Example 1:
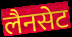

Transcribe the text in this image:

लैनसेट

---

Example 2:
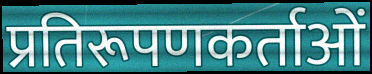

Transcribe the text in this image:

प्रतिरूपणकर्ताओं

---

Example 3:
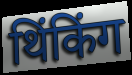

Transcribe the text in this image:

थिंकिंग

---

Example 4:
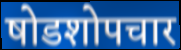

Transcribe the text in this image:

षोडशोपचार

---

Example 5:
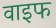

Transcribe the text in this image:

वाइफ